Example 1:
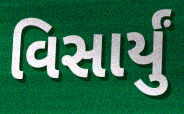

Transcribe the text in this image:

વિસાર્યું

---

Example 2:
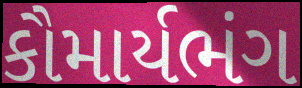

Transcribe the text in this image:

કૌમાર્યભંગ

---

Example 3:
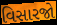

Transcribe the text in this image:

વિસારજો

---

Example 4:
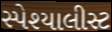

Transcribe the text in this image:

સ્પેશ્યાલીસ્ટ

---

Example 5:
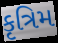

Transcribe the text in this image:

કૃત્રિમ